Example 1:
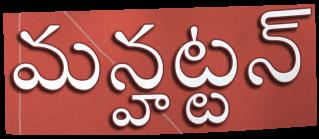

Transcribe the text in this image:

మన్హట్టన్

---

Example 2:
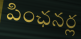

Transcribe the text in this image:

పింఛనర్ల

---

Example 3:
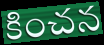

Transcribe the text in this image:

కించన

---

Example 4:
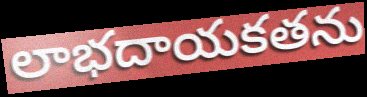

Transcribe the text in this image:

లాభదాయకతను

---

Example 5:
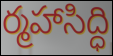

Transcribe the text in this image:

ర్మహాసిద్ధి